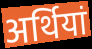
अर्थियां